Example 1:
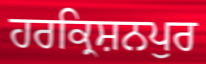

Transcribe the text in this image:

ਹਰਕ੍ਰਿਸ਼ਨਪੁਰ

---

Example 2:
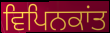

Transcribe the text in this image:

ਵਿਪਿਨਕਾਂਤ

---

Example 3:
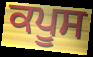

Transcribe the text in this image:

ਕਪੂਸ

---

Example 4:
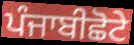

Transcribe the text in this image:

ਪੰਜਾਬੀਛੋਟੇ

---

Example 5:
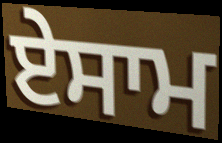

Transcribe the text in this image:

ਏਸਾਮ